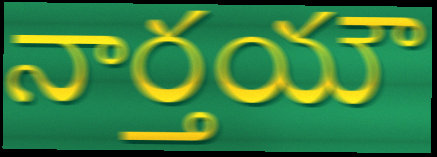
నార్తయౌ